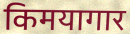
किमयागार